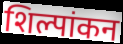
शिल्पांकन